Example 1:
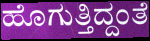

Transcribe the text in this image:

ಹೊಗುತ್ತಿದ್ದಂತೆ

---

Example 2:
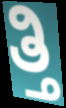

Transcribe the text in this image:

ತ್ತಿ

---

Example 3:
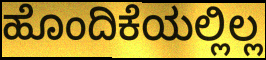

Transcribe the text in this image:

ಹೊಂದಿಕೆಯಲ್ಲಿಲ್ಲ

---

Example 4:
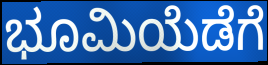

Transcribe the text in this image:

ಭೂಮಿಯೆಡೆಗೆ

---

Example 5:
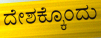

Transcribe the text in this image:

ದೇಶಕ್ಕೊಂದು